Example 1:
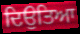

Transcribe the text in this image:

ਦਿਉਤਿਆ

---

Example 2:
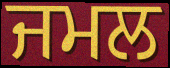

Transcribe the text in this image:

ਜਮਲ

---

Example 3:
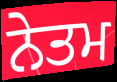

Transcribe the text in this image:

ਨੇਤਮ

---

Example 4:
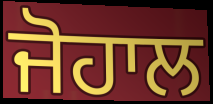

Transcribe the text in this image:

ਜੋਹਾਲ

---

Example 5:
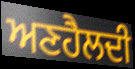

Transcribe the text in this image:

ਅਣਹੈਲਦੀ